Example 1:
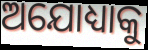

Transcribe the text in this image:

ଅଯୋଧ୍ୟାକୁ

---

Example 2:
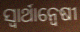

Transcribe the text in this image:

ସ୍ବାର୍ଥାନ୍ବେଷୀ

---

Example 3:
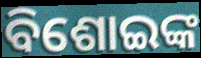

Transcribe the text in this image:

ବିଶୋଇଙ୍କ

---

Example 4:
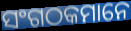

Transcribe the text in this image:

ସଂଗଠକମାନେ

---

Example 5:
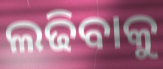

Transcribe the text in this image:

ଲଢିବାକୁ